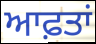
ਆਫ਼ਤਾਂ